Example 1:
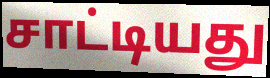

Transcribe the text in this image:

சாட்டியது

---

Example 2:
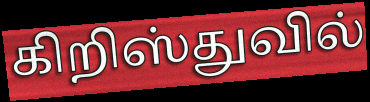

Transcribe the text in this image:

கிறிஸ்துவில்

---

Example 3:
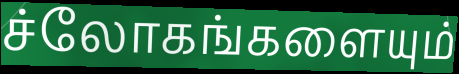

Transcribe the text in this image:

ச்லோகங்களையும்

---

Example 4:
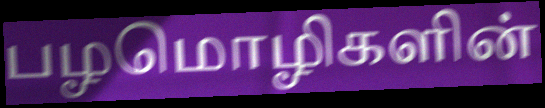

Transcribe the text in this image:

பழமொழிகளின்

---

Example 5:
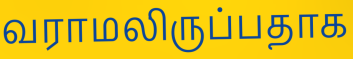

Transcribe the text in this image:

வராமலிருப்பதாக